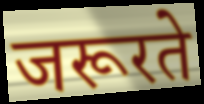
जरूरते